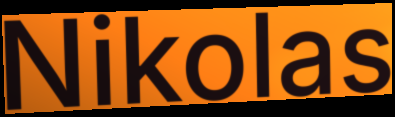
Nikolas